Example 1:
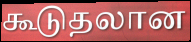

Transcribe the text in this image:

கூடுதலான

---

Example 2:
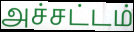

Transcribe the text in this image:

அச்சட்டம்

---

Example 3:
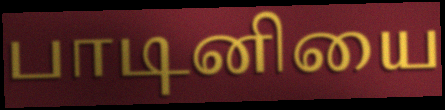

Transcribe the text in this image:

பாடினியை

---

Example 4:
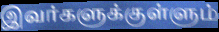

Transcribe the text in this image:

இவர்களுக்குள்ளும்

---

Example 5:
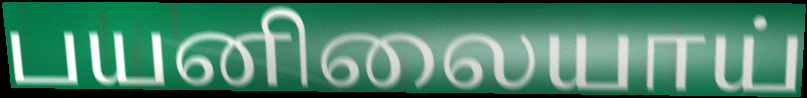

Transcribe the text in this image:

பயனிலையாய்